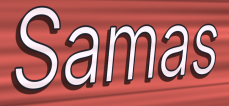
Samas